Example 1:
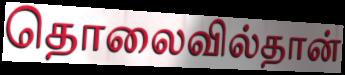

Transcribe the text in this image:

தொலைவில்தான்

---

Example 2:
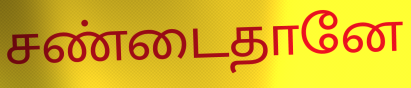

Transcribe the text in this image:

சண்டைதானே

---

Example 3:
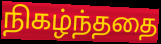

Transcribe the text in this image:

நிகழ்ந்ததை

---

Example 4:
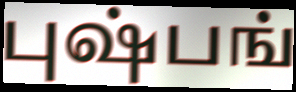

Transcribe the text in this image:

புஷ்பங்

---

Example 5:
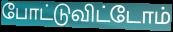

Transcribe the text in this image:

போட்டுவிட்டோம்